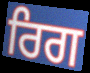
ਰਿਗ